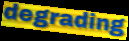
degrading